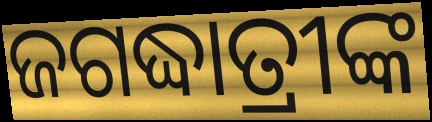
ଜଗଦ୍ଧାତ୍ରୀଙ୍କ